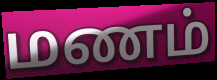
மணம்